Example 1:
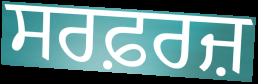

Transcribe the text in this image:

ਸਰਫ਼ਰਜ਼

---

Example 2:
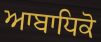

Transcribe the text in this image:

ਆਬਾਧਿਕੋ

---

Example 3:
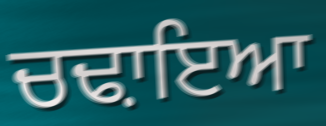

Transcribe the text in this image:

ਚਢ਼ਾਇਆ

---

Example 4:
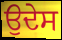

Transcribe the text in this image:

ਉਦੇਸ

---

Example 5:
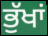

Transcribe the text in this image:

ਭੁੱਖਾਂ